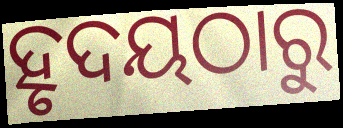
ହୃଦୟଠାରୁ